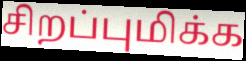
சிறப்புமிக்க